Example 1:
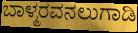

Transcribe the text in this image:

ಬಾಳ್ಮರವನಲುಗಾಡಿ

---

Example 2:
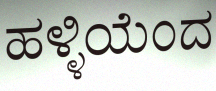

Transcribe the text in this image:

ಹಳ್ಳಿಯೆಂದ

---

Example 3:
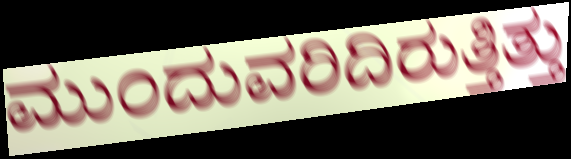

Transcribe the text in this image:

ಮುಂದುವರಿದಿರುತ್ತಿತ್ತು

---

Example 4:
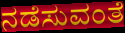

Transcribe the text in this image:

ನಡೆಸುವಂತೆ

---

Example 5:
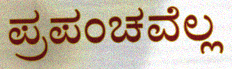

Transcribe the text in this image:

ಪ್ರಪಂಚವೆಲ್ಲ